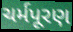
ચર્મપૂરણ